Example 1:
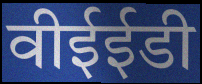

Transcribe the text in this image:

वीईईडी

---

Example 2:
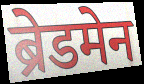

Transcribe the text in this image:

ब्रेडमेन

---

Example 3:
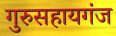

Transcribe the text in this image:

गुरुसहायगंज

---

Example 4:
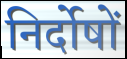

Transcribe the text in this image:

निर्दोषों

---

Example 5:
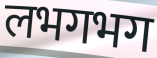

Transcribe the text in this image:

लभगभग